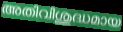
അതിവിശുദ്ധമായ